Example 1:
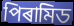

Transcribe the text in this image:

পিৰামিড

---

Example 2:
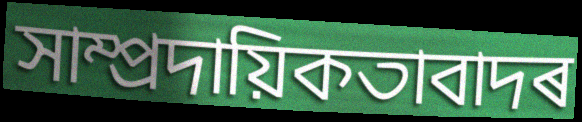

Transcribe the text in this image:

সাম্প্ৰদায়িকতাবাদৰ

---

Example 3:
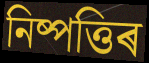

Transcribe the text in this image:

নিষ্পত্তিৰ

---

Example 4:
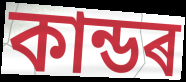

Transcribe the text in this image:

কান্ডৰ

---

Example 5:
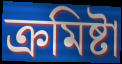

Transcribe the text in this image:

ক্ৰমিষ্টা